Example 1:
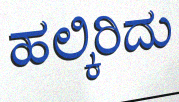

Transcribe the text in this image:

ಹಲ್ಕಿರಿದು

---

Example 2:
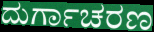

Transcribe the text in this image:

ದುರ್ಗಾಚರಣ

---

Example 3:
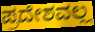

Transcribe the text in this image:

ಪ್ರದೇಶವಲ್ಲ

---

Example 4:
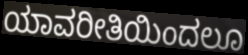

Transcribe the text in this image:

ಯಾವರೀತಿಯಿಂದಲೂ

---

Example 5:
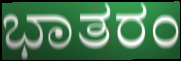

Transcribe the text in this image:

ಭಾತರಂ